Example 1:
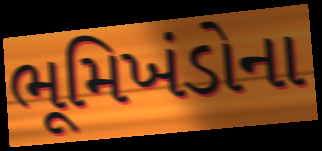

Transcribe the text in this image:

ભૂમિખંડોના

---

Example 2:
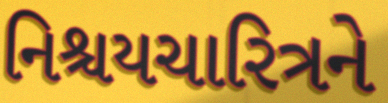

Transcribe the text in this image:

નિશ્ચયચારિત્રને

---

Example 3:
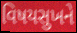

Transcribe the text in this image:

વિષયસુખને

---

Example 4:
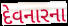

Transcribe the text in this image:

દેવનારના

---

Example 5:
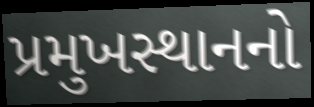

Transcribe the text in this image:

પ્રમુખસ્થાનનો